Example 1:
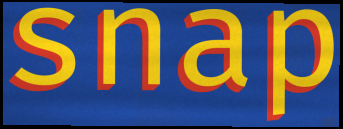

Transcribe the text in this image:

snap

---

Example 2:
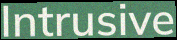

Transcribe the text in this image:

Intrusive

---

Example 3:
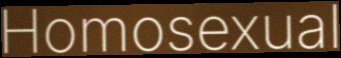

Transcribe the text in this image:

Homosexual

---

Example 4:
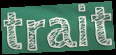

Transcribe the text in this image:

trait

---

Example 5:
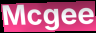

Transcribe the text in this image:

Mcgee